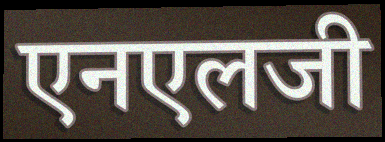
एनएलजी